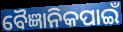
ବୈଜ୍ଞାନିକପାଇଁ